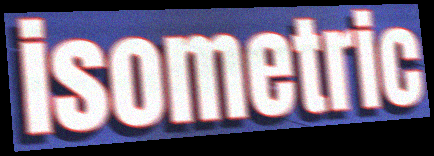
isometric